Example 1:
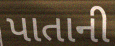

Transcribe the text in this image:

પાતાની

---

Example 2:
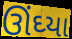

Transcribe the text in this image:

ઊંઘ્યા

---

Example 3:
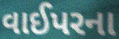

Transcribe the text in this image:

વાઈપરના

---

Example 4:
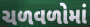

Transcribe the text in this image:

ચળવળોમાં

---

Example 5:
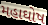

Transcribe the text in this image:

મહાઘોષ